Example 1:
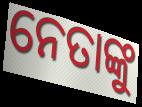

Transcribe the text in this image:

ନେତାଙ୍କୁ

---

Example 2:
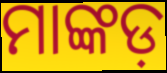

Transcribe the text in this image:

ମାଙ୍କଡ଼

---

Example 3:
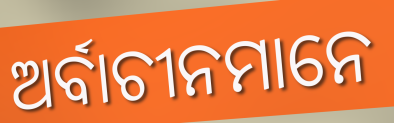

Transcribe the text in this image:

ଅର୍ବାଚୀନମାନେ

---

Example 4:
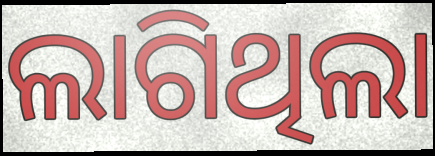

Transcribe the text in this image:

ଲାଗିଥିଲା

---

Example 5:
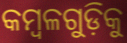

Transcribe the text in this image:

କମ୍ବଳଗୁଡ଼ିକୁ